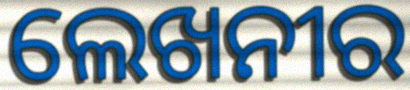
ଲେଖନୀର